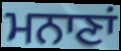
ਮਨਾਣਾਂ